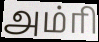
அம்ரி